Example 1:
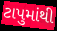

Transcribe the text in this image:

ટાપુમાંથી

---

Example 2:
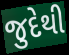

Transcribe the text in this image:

જુદેથી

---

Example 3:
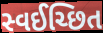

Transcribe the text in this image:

સ્વઈચ્છિત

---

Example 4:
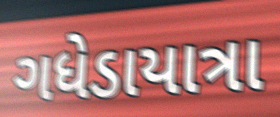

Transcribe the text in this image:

ગધેડાયાત્રા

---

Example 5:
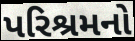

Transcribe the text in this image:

પરિશ્રમનો